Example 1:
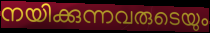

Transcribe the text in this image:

നയിക്കുന്നവരുടെയും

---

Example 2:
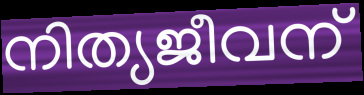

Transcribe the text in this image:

നിത്യജീവന്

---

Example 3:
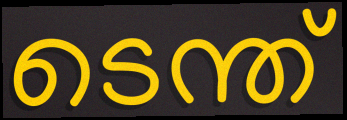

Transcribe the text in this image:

ടെന്ത്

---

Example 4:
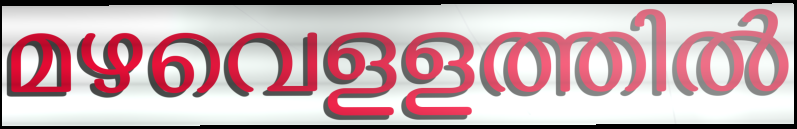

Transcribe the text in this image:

മഴവെളളത്തിൽ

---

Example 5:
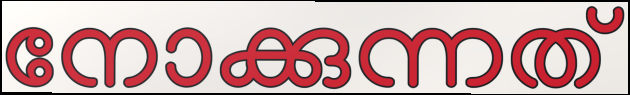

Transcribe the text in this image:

നോക്കുന്നത്